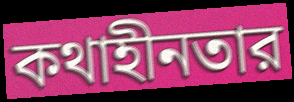
কথাহীনতার